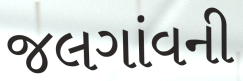
જલગાંવની